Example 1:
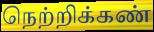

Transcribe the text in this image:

நெற்றிக்கண்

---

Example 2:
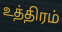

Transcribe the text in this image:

உத்திரம்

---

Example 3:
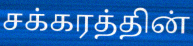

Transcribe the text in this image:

சக்கரத்தின்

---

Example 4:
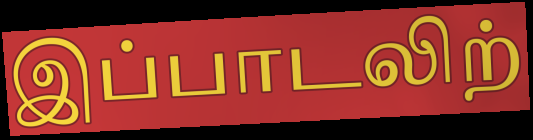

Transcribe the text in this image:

இப்பாடலிற்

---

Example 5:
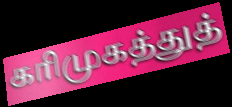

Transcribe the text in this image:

கரிமுகத்துத்